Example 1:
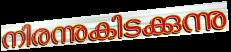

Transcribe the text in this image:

നിരന്നുകിടക്കുന്നു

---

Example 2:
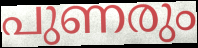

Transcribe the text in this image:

പുണരും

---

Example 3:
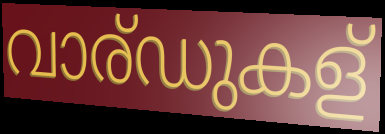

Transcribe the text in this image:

വാര്ഡുകള്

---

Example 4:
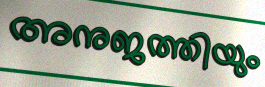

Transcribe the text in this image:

അനുജത്തിയും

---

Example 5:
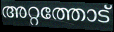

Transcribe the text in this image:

അറ്റത്തോട്